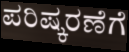
ಪರಿಷ್ಕರಣೆಗೆ